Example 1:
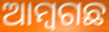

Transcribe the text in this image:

ଆମ୍ବଗଛ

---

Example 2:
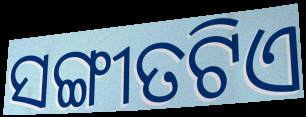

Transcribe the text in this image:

ସଙ୍ଗୀତଟିଏ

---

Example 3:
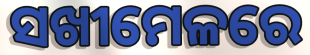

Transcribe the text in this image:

ସଖୀମେଳରେ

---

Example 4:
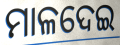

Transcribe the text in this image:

ମାଳଦେଇ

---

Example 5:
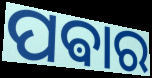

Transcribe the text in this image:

ପଵାର